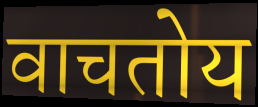
वाचतोय